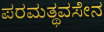
ಪರಮತ್ಥವಸೇನ